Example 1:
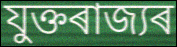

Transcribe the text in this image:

যুক্তৰাজ্যৰ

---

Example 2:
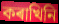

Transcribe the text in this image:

কৰাখিনি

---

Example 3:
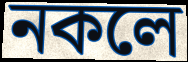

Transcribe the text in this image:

নকলে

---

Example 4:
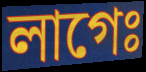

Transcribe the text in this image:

লাগেঃ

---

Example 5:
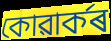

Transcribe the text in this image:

কোৱাৰ্কৰ